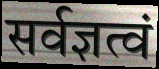
सर्वज्ञत्वं